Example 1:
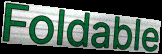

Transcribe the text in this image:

Foldable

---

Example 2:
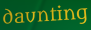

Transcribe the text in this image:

daunting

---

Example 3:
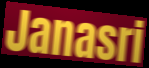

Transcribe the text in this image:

Janasri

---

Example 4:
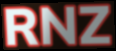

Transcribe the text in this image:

RNZ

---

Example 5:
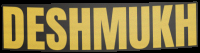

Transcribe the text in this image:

DESHMUKH